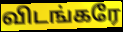
விடங்கரே